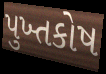
પુખ્તકોષ